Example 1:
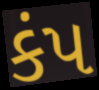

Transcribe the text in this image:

કંપ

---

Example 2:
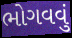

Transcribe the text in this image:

ભોગવવું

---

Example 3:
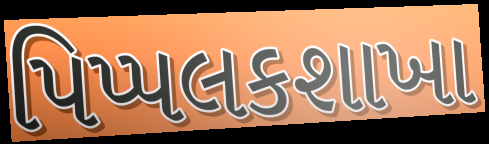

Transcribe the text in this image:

પિપ્પલકશાખા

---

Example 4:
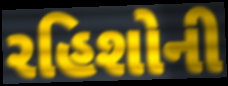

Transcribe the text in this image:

રહિશોની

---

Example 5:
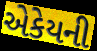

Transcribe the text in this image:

એકેયની